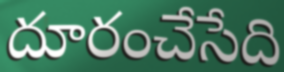
దూరంచేసేది